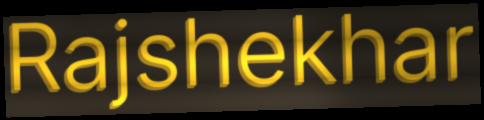
Rajshekhar